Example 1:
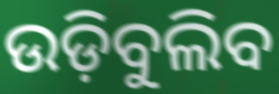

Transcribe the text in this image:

ଉଡ଼ିବୁଲିବ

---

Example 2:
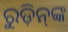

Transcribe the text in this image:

ରୁଡ଼ିନ୍‌ଙ୍କ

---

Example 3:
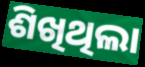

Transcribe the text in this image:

ଶିଖିଥିଲା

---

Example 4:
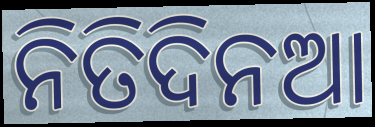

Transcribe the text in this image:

ନିତିଦିନଆ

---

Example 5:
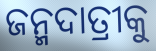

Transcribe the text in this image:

ଜନ୍ମଦାତ୍ରୀକୁ